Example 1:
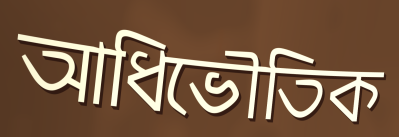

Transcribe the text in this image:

আধিভৌতিক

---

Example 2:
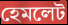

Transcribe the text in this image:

হেমলেট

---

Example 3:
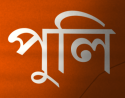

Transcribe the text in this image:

পুলি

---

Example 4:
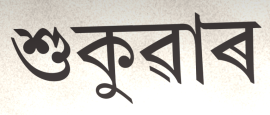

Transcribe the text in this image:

শুকুৱাৰ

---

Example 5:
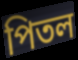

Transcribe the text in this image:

পিতল